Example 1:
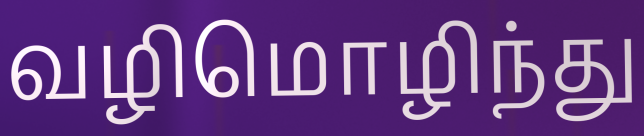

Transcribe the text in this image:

வழிமொழிந்து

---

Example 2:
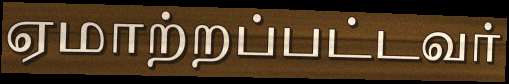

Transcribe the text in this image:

ஏமாற்றப்பட்டவர்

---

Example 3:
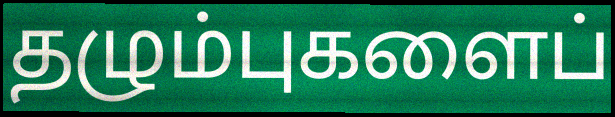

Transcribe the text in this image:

தழும்புகளைப்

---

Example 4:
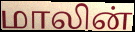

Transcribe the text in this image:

மாலின்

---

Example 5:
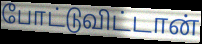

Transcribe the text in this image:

போட்டுவிட்டான்